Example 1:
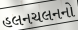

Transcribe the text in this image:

હલનચલનનો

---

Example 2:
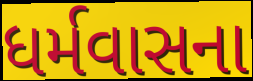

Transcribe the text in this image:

ધર્મવાસના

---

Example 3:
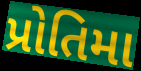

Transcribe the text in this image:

પ્રોતિમા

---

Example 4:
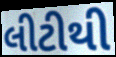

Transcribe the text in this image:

લીટીથી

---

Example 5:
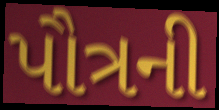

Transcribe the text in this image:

પૌત્રની